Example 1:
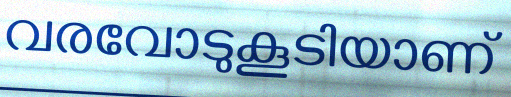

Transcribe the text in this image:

വരവോടുകൂടിയാണ്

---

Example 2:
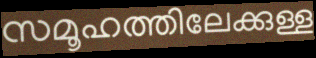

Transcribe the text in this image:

സമൂഹത്തിലേക്കുള്ള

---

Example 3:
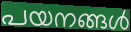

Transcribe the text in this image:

പയനങ്ങൾ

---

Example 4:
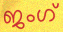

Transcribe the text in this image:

ജംഗ്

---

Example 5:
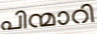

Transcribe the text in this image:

പിന്മാറി